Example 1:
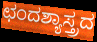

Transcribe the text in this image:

ಛಂದಶ್ಯಾಸ್ತ್ರದ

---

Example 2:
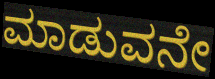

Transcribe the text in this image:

ಮಾಡುವನೇ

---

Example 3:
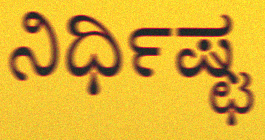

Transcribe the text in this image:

ನಿರ್ಧಿಷ್ಟ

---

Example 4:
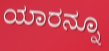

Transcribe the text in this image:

ಯಾರನ್ನೂ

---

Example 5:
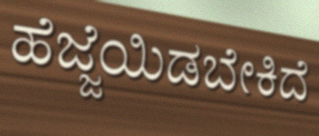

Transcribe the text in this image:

ಹೆಜ್ಜೆಯಿಡಬೇಕಿದೆ